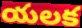
యలక